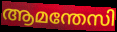
ആമന്തേസി